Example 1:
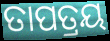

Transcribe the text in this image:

ତାପତ୍ରୟ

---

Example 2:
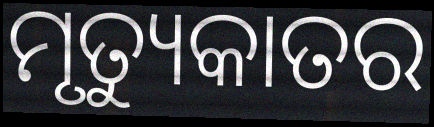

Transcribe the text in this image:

ମୃତ୍ୟୁକାତର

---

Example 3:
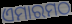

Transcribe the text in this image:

ଏମାରମଠ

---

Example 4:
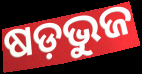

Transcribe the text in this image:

ଷଡ଼ଭୁଜ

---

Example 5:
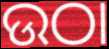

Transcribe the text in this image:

ଉଠା